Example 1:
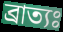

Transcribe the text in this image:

ব্রাত্যঃ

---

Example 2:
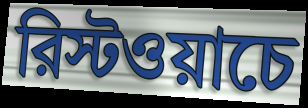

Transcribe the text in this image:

রিস্টওয়াচে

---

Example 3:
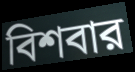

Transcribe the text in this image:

বিশবার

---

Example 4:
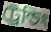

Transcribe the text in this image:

ট্রেন্ডিং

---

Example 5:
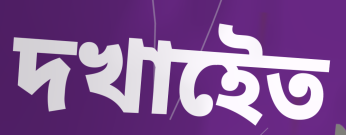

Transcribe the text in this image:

দখাইেত